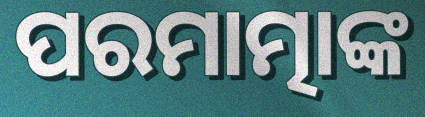
ପରମାତ୍ମାଙ୍କ